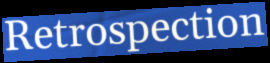
Retrospection